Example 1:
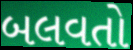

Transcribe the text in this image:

બલવતો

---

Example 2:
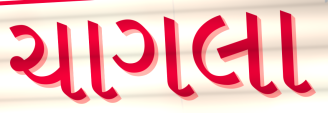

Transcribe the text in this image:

ચાગલા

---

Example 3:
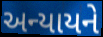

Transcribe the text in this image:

અન્યાયને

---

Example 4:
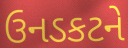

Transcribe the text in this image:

ઉનડકટને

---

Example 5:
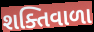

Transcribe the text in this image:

શક્તિવાળા